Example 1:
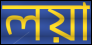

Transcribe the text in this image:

লয়া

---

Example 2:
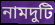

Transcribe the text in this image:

নামদুটি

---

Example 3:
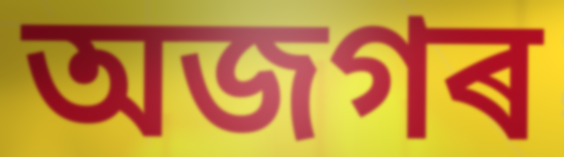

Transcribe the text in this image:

অজগৰ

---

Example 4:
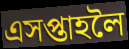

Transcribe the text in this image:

এসপ্তাহলৈ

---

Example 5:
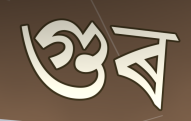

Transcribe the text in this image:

গুৰ